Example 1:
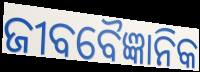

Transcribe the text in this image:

ଜୀବବୈଜ୍ଞାନିକ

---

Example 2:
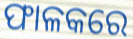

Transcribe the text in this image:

ଫାଳକରେ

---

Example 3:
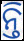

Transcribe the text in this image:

ନ୍ତି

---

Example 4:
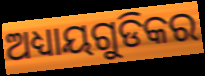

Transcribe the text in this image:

ଅଧ୍ୟାୟଗୁଡିକର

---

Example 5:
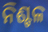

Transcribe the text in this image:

ନିଶ୍ଚଳ